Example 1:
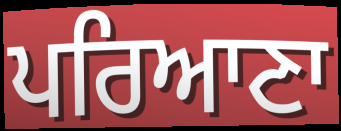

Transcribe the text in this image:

ਪਰਿਆਣਾ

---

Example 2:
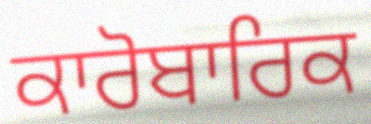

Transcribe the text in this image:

ਕਾਰੋਬਾਰਿਕ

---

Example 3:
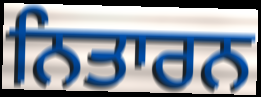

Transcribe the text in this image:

ਨਿਤਾਰਨ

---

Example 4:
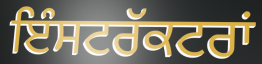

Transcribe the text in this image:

ਇੰਸਟਰੱਕਟਰਾਂ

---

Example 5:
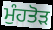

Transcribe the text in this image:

ਮੁੰਹਤੋੜ